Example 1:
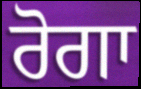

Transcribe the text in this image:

ਰੋਗਾ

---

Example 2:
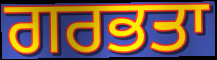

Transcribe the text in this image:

ਗਰਭਤਾ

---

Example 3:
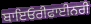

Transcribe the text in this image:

ਬਾਇਓਰੀਫਾਈਨਰੀ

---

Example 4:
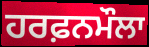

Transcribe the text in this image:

ਹਰਫ਼ਨਮੌਲਾ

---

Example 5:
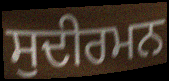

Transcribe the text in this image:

ਸੁਦੀਰਮਨ